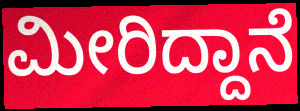
ಮೀರಿದ್ದಾನೆ